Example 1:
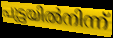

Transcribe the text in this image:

പുട്ടയിൽനിന്ന്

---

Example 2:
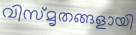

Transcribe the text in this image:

വിസ്മൃതങ്ങളായി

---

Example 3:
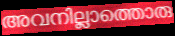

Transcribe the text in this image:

അവനില്ലാത്തൊരു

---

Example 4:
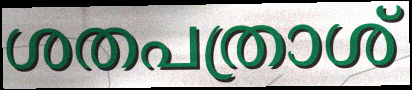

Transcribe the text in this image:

ശതപത്രാശ്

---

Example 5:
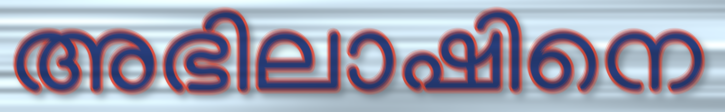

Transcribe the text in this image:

അഭിലാഷിനെ